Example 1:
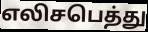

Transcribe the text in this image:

எலிசபெத்து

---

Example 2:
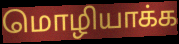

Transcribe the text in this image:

மொழியாக்க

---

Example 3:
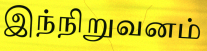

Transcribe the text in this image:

இந்நிறுவனம்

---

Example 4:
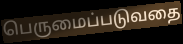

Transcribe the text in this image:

பெருமைப்படுவதை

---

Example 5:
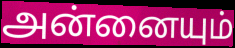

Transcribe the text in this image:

அன்னையும்